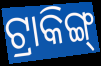
ଟ୍ରାକିଙ୍ଗ୍